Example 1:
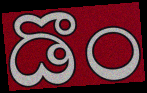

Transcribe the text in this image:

డొం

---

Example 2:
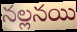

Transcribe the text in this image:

నల్లనయి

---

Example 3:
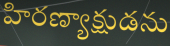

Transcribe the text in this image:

హిరణ్యాక్షుడను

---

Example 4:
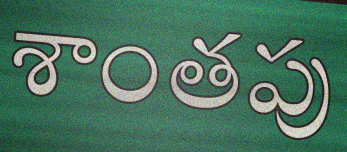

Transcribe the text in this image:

శాంతపు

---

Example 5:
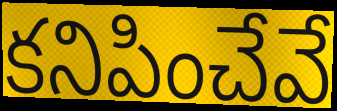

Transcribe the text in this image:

కనిపించేవే